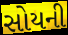
સોયની